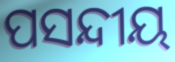
ପସନ୍ଦୀୟ